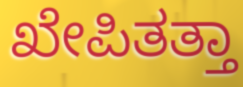
ಖೇಪಿತತ್ತಾ